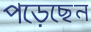
পড়েছেন